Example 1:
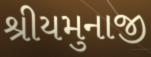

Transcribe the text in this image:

શ્રીયમુનાજી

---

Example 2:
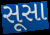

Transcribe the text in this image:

સૂસા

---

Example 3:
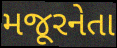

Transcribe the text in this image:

મજૂરનેતા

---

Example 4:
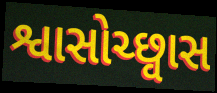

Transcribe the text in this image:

શ્વાસોચ્છ્વાસ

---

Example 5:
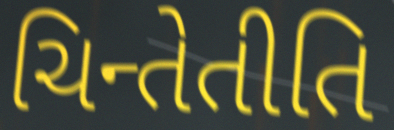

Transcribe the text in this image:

ચિન્તેતીતિ